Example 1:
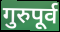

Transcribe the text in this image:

गुरुपूर्व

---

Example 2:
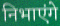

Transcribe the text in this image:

निभाएंगे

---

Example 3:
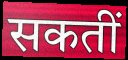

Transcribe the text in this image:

सकतीं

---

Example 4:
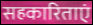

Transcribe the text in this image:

सहकारिताएं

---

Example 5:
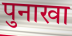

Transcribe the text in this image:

पुनाखा